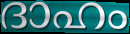
ദാഹം